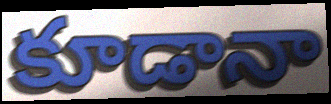
కూడానా